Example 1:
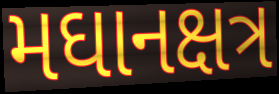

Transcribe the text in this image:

મઘાનક્ષત્ર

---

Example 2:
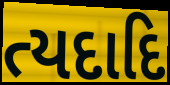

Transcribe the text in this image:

ત્યદાદિ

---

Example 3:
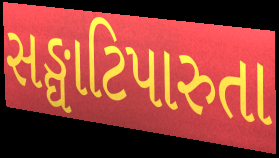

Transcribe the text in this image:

સઙ્ઘાટિપારુતા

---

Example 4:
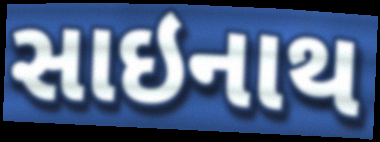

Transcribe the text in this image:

સાઇનાથ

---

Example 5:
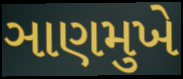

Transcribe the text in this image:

ઞાણમુખે